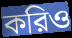
করিও